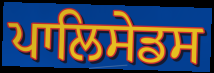
ਪਾਲਿਸੇਡਸ